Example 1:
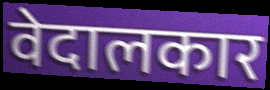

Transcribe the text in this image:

वेदालकार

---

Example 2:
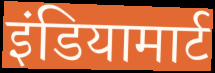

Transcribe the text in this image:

इंडियामार्ट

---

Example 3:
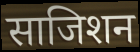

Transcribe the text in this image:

साजिशन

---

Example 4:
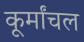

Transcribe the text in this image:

कूर्मांचल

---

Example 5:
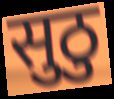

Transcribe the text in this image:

सुठु